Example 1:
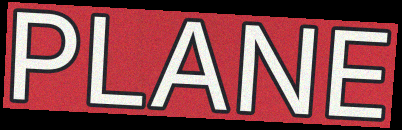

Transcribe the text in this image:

PLANE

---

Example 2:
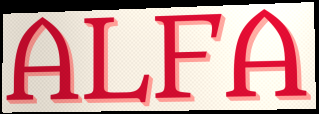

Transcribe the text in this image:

ALFA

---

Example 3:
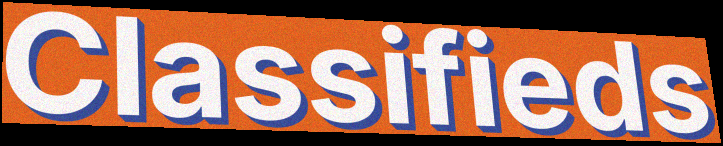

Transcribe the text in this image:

Classifieds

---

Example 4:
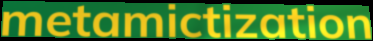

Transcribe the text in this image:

metamictization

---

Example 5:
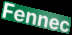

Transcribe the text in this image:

Fennec